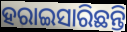
ହରାଇସାରିଛନ୍ତି